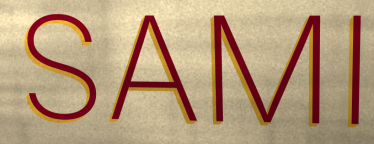
SAMI